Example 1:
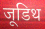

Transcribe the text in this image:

जूडिथ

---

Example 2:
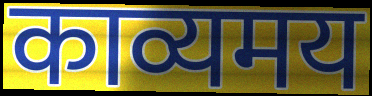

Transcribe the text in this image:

काव्यमय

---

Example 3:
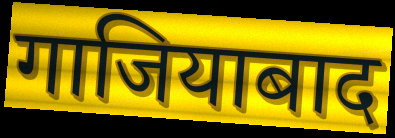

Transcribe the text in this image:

गाजियाबाद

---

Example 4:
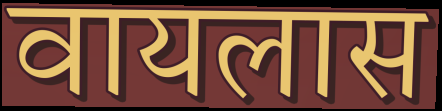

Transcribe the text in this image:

वायलास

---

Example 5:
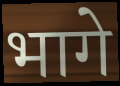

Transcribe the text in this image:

भागे